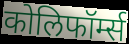
कोलिफॉर्म्स